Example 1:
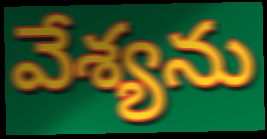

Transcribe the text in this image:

వేశ్యను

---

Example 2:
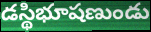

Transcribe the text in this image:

డస్థిభూషణుండు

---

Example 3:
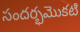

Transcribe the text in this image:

సందర్భమొకటి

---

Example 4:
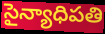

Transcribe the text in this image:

సైన్యాధిపతి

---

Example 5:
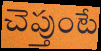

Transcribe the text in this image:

చెప్తుంటే